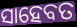
ସାହେବତ